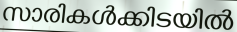
സാരികൾക്കിടയിൽ